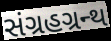
સંગ્રહગ્રન્થ